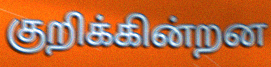
குறிக்கின்றன